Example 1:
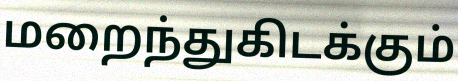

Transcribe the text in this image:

மறைந்துகிடக்கும்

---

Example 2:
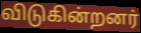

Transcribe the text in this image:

விடுகின்றனர்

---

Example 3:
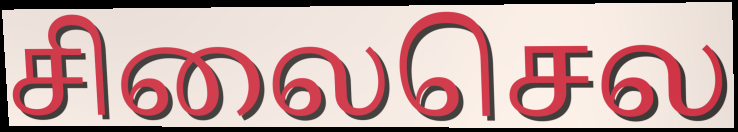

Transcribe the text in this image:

சிலைசெல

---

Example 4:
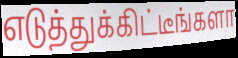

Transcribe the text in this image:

எடுத்துக்கிட்டீங்களா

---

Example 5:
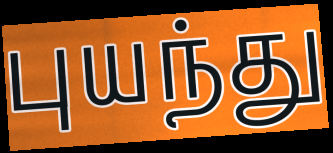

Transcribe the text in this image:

புயந்து